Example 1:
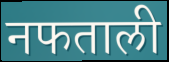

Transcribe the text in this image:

नफताली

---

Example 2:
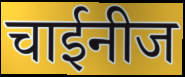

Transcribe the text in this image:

चाईनीज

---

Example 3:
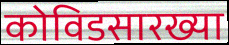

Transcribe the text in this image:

कोविडसारख्या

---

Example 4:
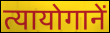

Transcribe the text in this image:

त्यायोगानें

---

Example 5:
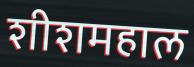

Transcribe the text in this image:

शीशमहाल